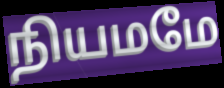
நியமமே